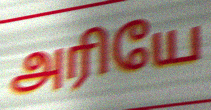
அரியே